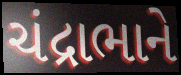
ચંદ્રાભાને